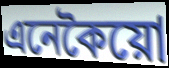
এনেকৈয়ো